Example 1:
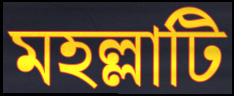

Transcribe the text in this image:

মহল্লাটি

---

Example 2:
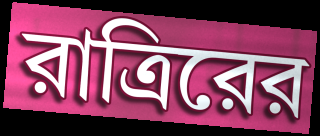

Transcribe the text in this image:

রাত্রিরের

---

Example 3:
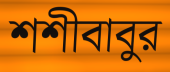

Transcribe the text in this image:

শশীবাবুর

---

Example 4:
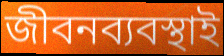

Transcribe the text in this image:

জীবনব্যবস্থাই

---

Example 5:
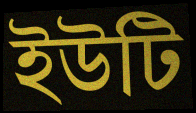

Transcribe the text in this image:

ইউটি